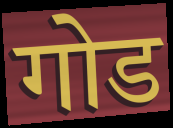
गोड